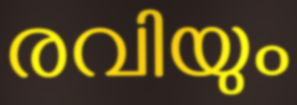
രവിയും